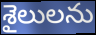
శైలులను